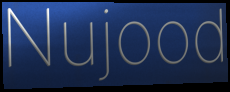
Nujood